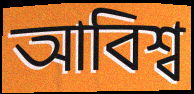
আবিশ্ব